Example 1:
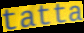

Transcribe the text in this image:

tatta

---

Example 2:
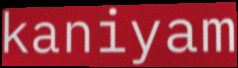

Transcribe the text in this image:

kaniyam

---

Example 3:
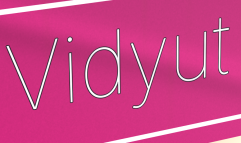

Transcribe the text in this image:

Vidyut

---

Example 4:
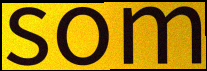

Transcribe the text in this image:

som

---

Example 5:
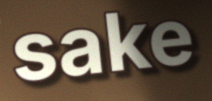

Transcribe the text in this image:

sake